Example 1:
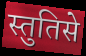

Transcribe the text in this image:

स्तुतिसे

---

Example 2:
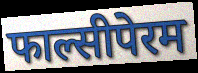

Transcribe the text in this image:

फाल्सीपेरम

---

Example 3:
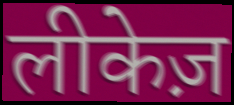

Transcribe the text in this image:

लीकेज़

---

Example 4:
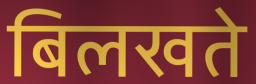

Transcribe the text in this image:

बिलखते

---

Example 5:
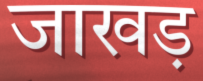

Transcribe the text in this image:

जाखड़